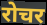
रोचर